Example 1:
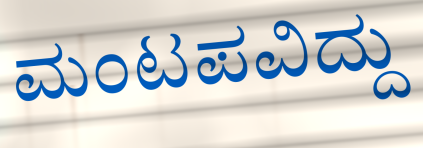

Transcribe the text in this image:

ಮಂಟಪವಿದ್ದು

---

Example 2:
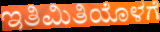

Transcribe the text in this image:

ಇತಿಮಿತಿಯೊಳಗೆ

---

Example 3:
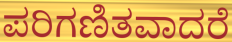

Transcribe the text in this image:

ಪರಿಗಣಿತವಾದರೆ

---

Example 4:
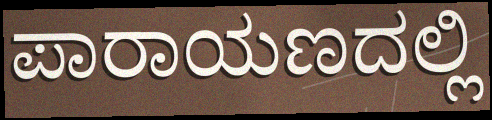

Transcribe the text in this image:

ಪಾರಾಯಣದಲ್ಲಿ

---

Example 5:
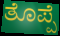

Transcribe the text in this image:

ತೊಪ್ಪೆ